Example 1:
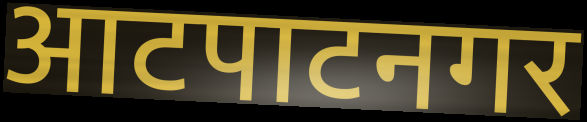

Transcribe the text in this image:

आटपाटनगर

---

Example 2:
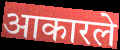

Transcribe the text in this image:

आकारले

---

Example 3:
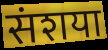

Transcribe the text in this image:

संशया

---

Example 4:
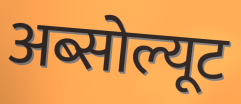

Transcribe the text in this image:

अब्सोल्यूट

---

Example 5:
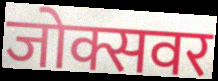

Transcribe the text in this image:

जोक्सवर